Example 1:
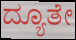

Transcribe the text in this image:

ದ್ಯೂತೇ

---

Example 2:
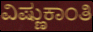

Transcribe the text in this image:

ವಿಷ್ಣುಕಾಂತಿ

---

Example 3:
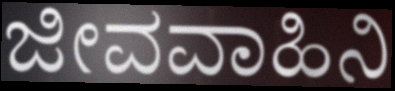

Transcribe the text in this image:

ಜೀವವಾಹಿನಿ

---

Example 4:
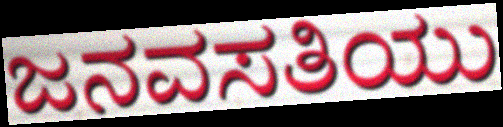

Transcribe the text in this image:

ಜನವಸತಿಯು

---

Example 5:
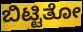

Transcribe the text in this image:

ಬಿಟ್ಟಿತೋ